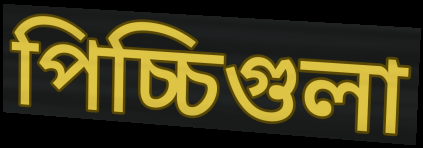
পিচ্চিগুলা